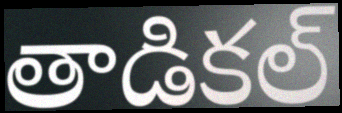
తాడికల్